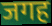
जगह